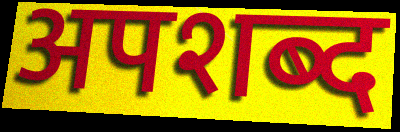
अपशब्द